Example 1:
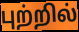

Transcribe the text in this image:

புற்றில்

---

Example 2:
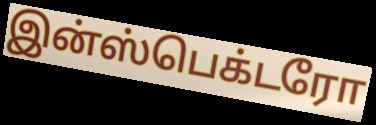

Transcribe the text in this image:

இன்ஸ்பெக்டரோ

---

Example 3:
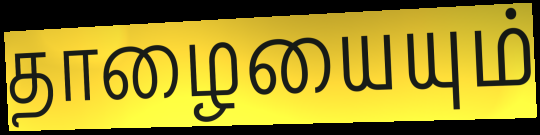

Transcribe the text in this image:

தாழையையும்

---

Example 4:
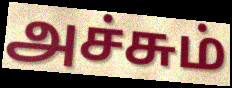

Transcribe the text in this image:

அச்சும்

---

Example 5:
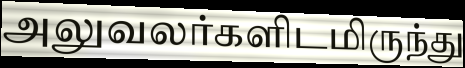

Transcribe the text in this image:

அலுவலர்களிடமிருந்து